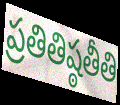
ప్రతితిష్ఠతీతి